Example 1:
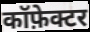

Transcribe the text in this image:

कॉफ़ेक्टर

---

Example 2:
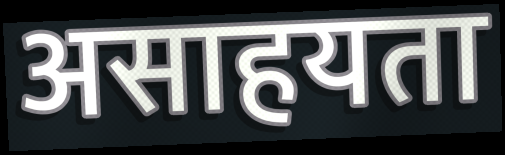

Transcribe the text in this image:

असाहयता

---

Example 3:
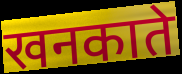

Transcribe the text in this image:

खनकाते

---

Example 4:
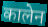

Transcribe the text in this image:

कालेन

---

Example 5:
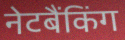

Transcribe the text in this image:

नेटबैंकिंग